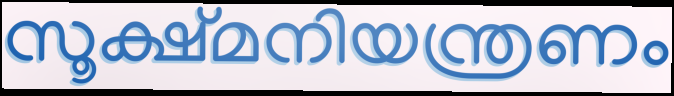
സൂക്ഷ്മനിയന്ത്രണം